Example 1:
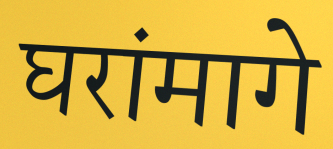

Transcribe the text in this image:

घरांमागे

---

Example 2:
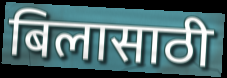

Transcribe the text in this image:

बिलासाठी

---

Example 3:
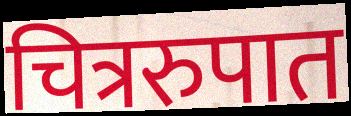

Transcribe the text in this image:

चित्ररुपात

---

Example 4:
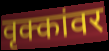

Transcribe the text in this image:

वृक्कांवर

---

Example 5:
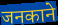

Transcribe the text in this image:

जनकाने